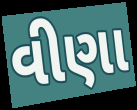
વીણા